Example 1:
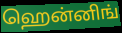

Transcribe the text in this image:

ஹென்னிங்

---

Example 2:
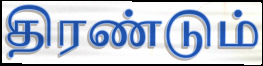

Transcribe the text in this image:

திரண்டும்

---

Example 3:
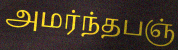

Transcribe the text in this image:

அமர்ந்தபஞ்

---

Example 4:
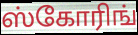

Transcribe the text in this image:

ஸ்கோரிங்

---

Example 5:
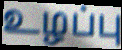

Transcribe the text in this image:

உழப்பு